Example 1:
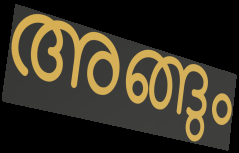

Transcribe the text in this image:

അങ്ങും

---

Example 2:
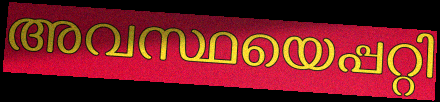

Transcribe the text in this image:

അവസ്ഥയെപ്പറ്റി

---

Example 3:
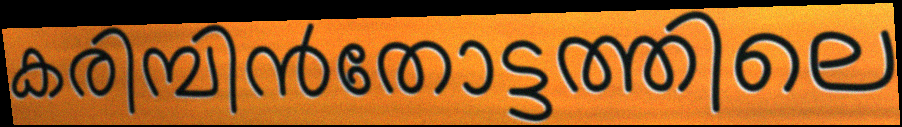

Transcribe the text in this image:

കരിമ്പിൻതോട്ടത്തിലെ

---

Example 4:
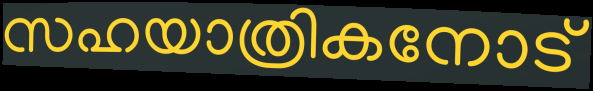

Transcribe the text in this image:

സഹയാത്രികനോട്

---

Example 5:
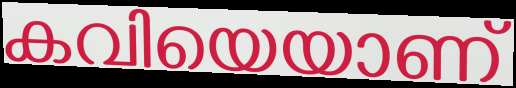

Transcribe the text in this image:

കവിയെയാണ്